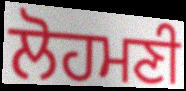
ਲੋਹਮਣੀ